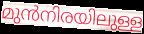
മുൻനിരയിലുള്ള